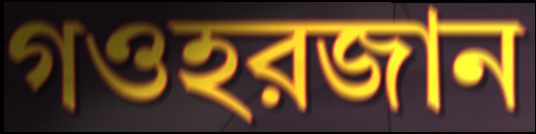
গওহরজান